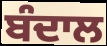
ਬੰਦਾਲ